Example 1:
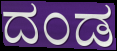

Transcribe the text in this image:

ದಂಡ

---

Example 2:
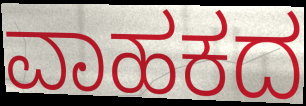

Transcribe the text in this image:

ವಾಹಕದ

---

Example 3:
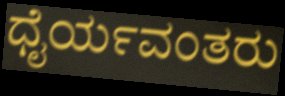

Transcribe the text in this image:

ಧೈರ್ಯವಂತರು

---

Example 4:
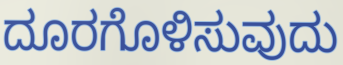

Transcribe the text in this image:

ದೂರಗೊಳಿಸುವುದು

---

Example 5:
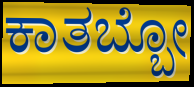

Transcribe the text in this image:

ಕಾತಬ್ಬೋ